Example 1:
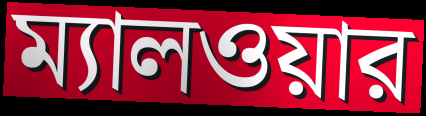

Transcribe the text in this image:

ম্যালওয়ার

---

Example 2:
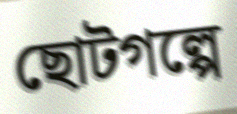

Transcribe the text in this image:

ছোটগল্পে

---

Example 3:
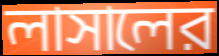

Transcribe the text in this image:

লাসালের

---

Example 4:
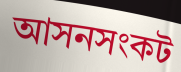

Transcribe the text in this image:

আসনসংকট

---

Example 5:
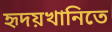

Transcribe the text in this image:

হৃদয়খানিতে